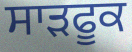
ਸਾੜਫੂਕ